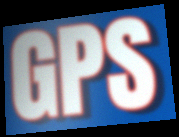
GPS